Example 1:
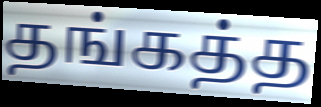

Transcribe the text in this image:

தங்கத்த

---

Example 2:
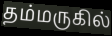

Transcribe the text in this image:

தம்மருகில்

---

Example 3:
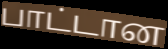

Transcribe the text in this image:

பாட்டான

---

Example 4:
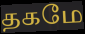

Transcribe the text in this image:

தகமே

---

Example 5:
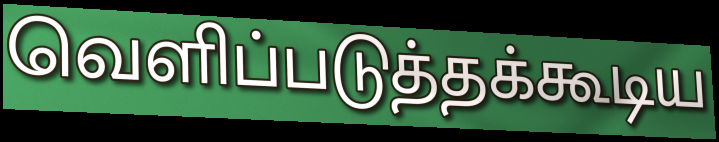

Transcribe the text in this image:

வெளிப்படுத்தக்கூடிய